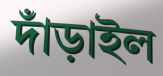
দাঁড়াইল